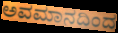
ಅವಮಾನದಿಂದ